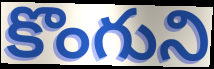
కొంగుని